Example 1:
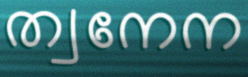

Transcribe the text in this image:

ത്വനേന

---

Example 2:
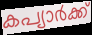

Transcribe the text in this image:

കപ്യാർക്ക്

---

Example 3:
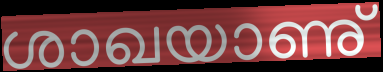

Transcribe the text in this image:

ശാഖയാണു്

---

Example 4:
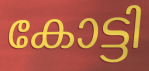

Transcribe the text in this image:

കോട്ടി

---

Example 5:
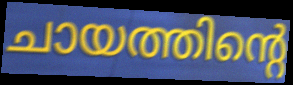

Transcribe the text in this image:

ചായത്തിന്റെ